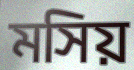
মসিয়